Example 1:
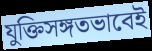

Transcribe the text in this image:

যুক্তিসঙ্গতভাবেই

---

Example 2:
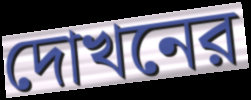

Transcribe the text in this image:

দোখনের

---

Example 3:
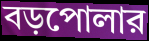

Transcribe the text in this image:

বড়পোলার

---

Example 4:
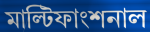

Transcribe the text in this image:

মাল্টিফাংশনাল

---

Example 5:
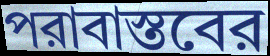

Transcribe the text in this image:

পরাবাস্তবের